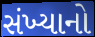
સંખ્યાનો